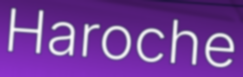
Haroche